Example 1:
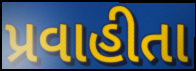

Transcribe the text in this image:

પ્રવાહીતા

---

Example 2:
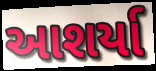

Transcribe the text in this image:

આશર્યા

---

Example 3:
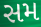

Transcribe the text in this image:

સમ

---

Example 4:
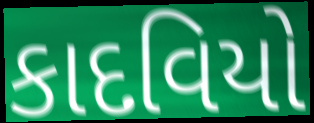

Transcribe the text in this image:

કાદવિયો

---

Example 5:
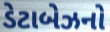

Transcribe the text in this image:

ડેટાબેઝનો